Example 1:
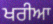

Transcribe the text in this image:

ਖਰੀਆ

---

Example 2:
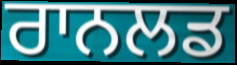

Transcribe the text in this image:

ਰਾਨਲਡ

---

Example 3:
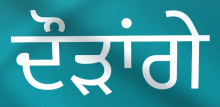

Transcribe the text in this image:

ਦੌੜਾਂਗੇ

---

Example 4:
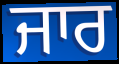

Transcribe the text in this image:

ਜਾਰ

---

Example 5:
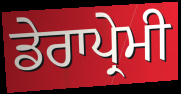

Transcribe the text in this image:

ਡੇਰਾਪ੍ਰੇਮੀ